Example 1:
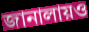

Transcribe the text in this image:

জানালায়ও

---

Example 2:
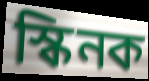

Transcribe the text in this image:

স্কিনক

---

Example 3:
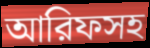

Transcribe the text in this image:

আরিফসহ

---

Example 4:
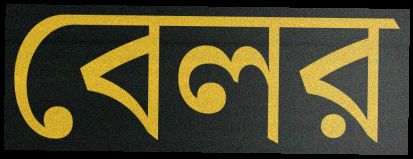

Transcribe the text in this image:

বেলর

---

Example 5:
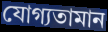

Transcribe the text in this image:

যোগ্যতামান